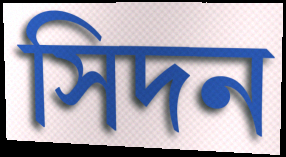
সিদন